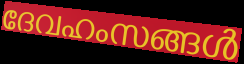
ദേവഹംസങ്ങൾ